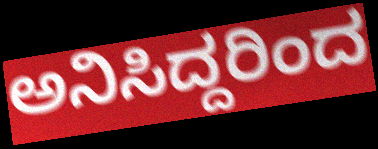
ಅನಿಸಿದ್ದರಿಂದ